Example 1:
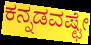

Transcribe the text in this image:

ಕನ್ನಡವಷ್ಟೇ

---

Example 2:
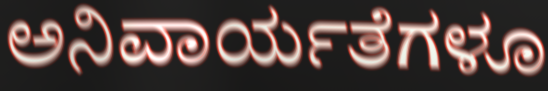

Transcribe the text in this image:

ಅನಿವಾರ್ಯತೆಗಳೂ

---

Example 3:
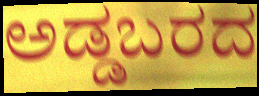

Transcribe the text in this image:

ಅಡ್ಡಬರದ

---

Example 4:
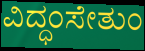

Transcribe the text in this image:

ವಿದ್ಧಂಸೇತುಂ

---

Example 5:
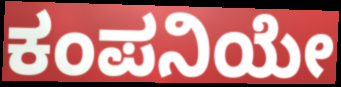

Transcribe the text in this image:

ಕಂಪನಿಯೇ